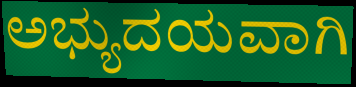
ಅಭ್ಯುದಯವಾಗಿ